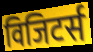
विजिटर्स